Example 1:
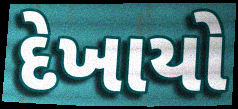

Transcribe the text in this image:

દેખાયો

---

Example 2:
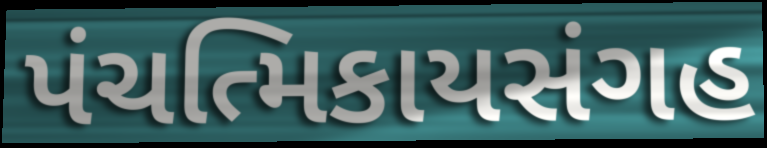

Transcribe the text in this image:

પંચત્મિકાયસંગહ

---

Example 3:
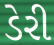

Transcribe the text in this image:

ડેરી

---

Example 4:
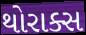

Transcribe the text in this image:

થોરાક્સ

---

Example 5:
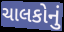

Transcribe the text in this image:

ચાલકોનું